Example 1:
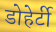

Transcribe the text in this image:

डोहेर्टी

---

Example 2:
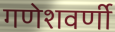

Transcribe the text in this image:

गणेशवर्णी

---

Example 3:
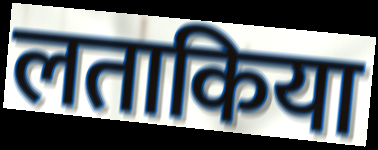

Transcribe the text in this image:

लताकिया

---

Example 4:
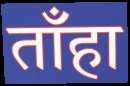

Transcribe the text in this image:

ताँहा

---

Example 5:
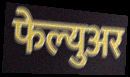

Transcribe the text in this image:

फेल्युअर